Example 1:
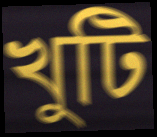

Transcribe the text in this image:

খুটি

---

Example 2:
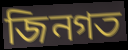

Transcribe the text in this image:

জিনগত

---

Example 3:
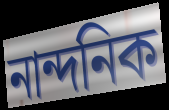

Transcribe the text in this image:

নান্দনিক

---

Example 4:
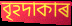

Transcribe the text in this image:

বৃহদাকাৰ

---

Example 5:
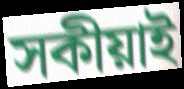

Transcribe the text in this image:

সকীয়াই